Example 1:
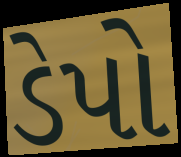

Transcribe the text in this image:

ડેપો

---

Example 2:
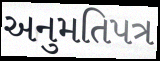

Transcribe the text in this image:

અનુમતિપત્ર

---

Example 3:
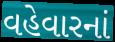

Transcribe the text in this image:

વહેવારનાં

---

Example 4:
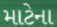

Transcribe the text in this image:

માટેના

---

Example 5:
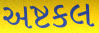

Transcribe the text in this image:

અષ્ટકલ